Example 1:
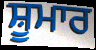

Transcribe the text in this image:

ਸ਼ੂਮਾਰ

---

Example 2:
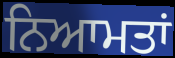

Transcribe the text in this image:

ਨਿਆਮਤਾਂ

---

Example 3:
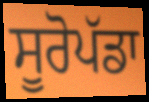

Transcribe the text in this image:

ਸੂਰੋਪੱਡਾ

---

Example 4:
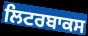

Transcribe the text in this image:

ਲਿਟਰਬਾਕਸ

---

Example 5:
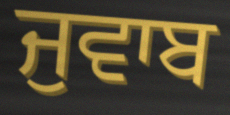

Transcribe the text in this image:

ਜੁਵਾਬ